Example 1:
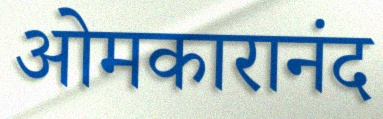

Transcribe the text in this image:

ओमकारानंद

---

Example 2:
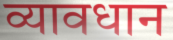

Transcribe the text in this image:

व्यावधान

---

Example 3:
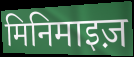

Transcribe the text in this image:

मिनिमाइज़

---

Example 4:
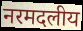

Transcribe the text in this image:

नरमदलीय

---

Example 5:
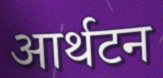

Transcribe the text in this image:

आर्थटन